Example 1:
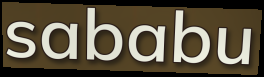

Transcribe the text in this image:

sababu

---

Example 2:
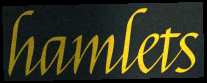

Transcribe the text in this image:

hamlets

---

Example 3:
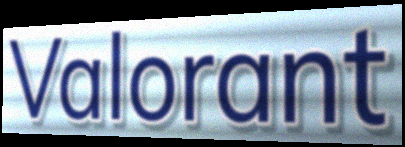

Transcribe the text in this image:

Valorant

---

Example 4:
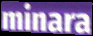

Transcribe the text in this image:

minara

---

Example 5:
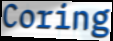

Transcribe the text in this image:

Coring